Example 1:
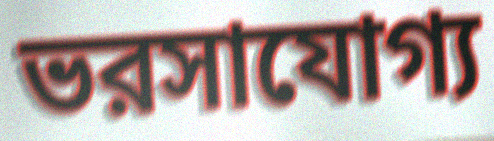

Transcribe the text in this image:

ভরসাযোগ্য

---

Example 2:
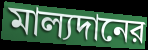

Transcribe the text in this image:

মাল্যদানের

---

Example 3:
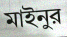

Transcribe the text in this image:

মাইনুর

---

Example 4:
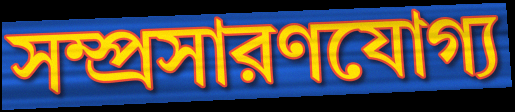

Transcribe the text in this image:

সম্প্রসারণযোগ্য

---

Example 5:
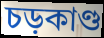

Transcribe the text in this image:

চড়কাণ্ড